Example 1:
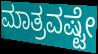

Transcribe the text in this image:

ಮಾತ್ರವಷ್ಟೇ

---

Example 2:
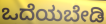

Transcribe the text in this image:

ಒದೆಯಬೇಡಿ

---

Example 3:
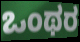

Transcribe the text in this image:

ಒಂಥರ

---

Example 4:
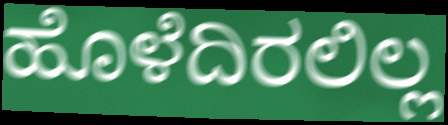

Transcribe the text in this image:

ಹೊಳೆದಿರಲಿಲ್ಲ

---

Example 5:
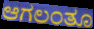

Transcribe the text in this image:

ಆಗಲಂತೂ